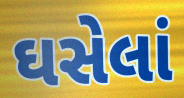
ઘસેલાં